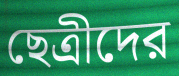
ছেত্রীদের